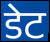
डेट